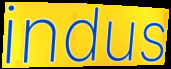
indus